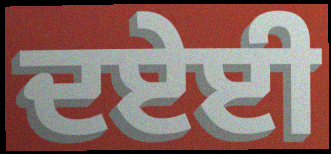
ਦਏਈ